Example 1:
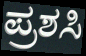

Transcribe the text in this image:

ಪ್ರಶಸಿ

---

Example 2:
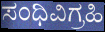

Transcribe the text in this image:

ಸಂಧಿವಿಗ್ರಹಿ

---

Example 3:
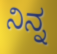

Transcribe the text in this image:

ನಿನ್ನ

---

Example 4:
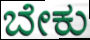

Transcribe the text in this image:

ಬೇಕು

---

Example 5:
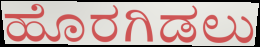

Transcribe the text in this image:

ಹೊರಗಿಡಲು